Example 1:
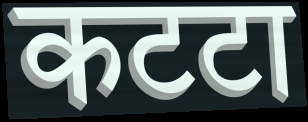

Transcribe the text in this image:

कटटा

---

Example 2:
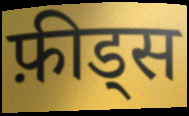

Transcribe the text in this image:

फ़ीड्स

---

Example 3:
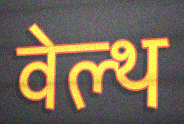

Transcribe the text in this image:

वेल्‍थ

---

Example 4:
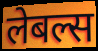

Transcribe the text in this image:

लेबल्स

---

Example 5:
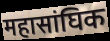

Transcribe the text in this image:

महासांघिक